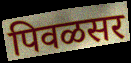
पिवळसर